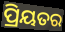
ପ୍ରିୟତର